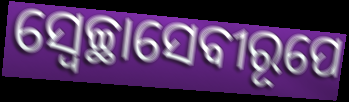
ସ୍ଵେଚ୍ଛାସେବୀରୂପେ